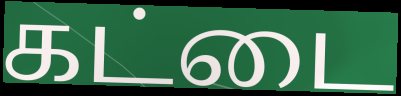
கட்டை